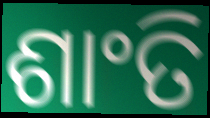
ଶାଂତି